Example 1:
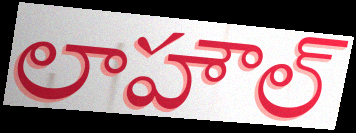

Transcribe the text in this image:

లాహౌల్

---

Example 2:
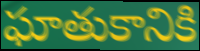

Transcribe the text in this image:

ఘాతుకానికి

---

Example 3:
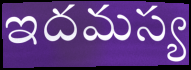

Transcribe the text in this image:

ఇదమస్య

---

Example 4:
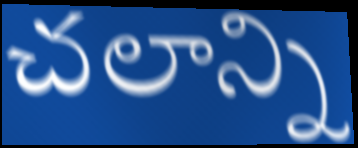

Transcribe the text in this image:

చలాన్ని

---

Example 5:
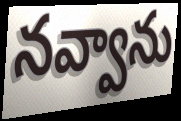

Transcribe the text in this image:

నవ్వాను